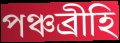
পঞ্চব্রীহি